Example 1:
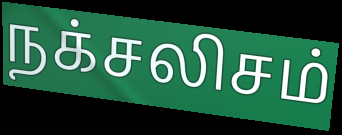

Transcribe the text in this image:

நக்சலிசம்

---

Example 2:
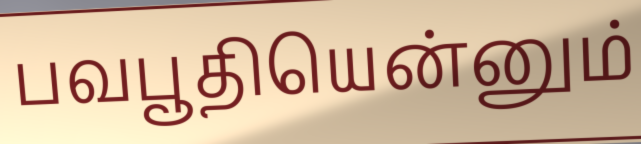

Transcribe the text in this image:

பவபூதியென்னும்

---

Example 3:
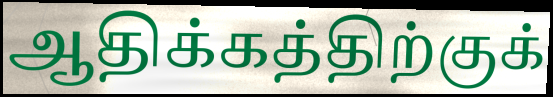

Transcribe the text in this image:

ஆதிக்கத்திற்குக்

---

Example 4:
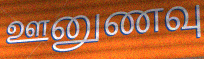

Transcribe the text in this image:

ஊனுணவு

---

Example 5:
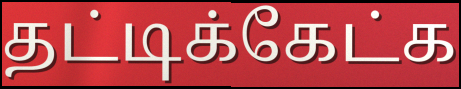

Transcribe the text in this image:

தட்டிக்கேட்க